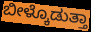
ಬೀಳ್ಕೊಡುತ್ತಾ